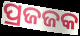
ପ୍ରଜଜକ